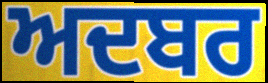
ਅਦਬਰ